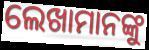
ଲେଖାମାନଙ୍କୁ